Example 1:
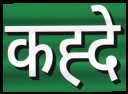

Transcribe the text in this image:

कह्दे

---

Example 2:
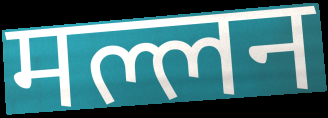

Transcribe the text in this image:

मल्लन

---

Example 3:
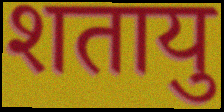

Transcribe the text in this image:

शतायु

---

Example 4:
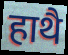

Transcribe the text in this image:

हाथै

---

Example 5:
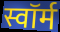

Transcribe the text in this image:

स्वॉर्म